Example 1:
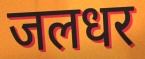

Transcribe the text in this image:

जलधर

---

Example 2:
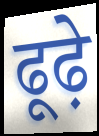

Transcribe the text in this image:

ढूढ़े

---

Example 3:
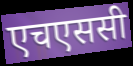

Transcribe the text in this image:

एचएससी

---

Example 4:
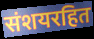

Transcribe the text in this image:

संशयरहित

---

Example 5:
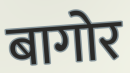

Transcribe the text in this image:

बागोर